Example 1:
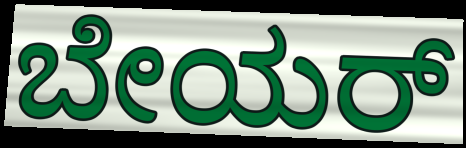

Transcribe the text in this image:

ಬೇಯರ್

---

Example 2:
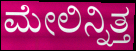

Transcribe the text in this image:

ಮೇಲಿನ್ನಿತ್ತ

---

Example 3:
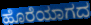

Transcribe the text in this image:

ಹೊರೆಯಾಗದ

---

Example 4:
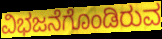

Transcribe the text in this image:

ವಿಭಜನೆಗೊಂಡಿರುವ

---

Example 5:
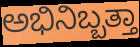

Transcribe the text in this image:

ಅಭಿನಿಬ್ಬತ್ತಾ